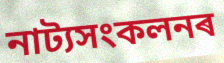
নাট্যসংকলনৰ